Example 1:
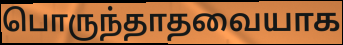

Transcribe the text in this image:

பொருந்தாதவையாக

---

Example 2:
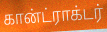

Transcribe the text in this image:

கான்ட்ராக்டர்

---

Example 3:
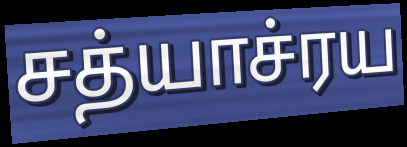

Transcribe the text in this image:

சத்யாச்ரய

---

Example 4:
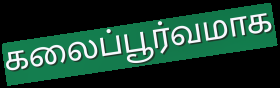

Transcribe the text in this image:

கலைப்பூர்வமாக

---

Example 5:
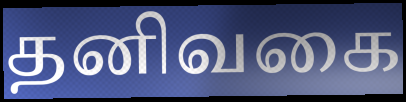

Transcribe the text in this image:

தனிவகை